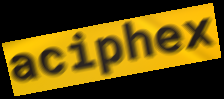
aciphex